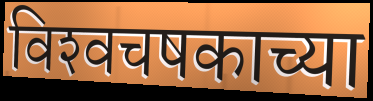
विश्वचषकाच्या